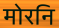
मोरनि